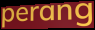
perang